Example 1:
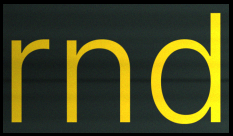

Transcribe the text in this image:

rnd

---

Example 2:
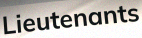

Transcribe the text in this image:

Lieutenants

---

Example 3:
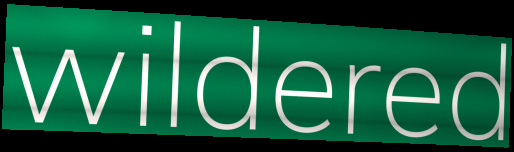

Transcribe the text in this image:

wildered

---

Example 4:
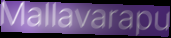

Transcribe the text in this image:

Mallavarapu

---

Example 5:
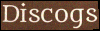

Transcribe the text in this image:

Discogs